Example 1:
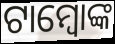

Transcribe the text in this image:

ଟାମ୍ବୋଙ୍କ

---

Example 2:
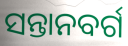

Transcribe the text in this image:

ସନ୍ତାନବର୍ଗ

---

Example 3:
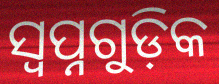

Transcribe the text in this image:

ସ୍ୱପ୍ନଗୁଡ଼ିକ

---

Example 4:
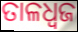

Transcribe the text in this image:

ତାଳଧ୍ୱଜ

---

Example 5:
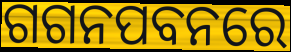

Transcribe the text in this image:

ଗଗନପବନରେ